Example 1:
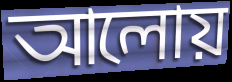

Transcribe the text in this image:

আলোয়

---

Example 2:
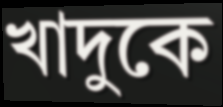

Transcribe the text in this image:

খাদুকে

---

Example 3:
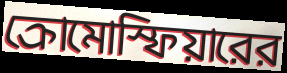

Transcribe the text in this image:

ক্রোমোস্ফিয়ারের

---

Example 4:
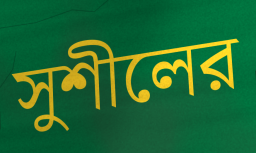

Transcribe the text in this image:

সুশীলের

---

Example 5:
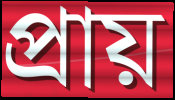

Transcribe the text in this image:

প্রায়